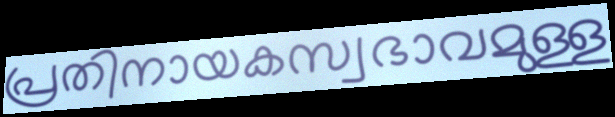
പ്രതിനായകസ്വഭാവമുള്ള